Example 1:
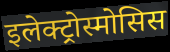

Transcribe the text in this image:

इलेक्ट्रोस्मोसिस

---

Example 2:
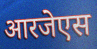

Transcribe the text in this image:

आरजेएस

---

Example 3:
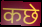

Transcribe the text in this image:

कछे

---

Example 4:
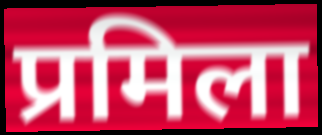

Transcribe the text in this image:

प्रमिला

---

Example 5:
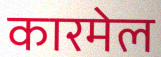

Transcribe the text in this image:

कारमेल